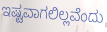
ಇಷ್ಟವಾಗಲಿಲ್ಲವೆಂದು